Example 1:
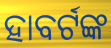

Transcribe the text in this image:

ହାବର୍ଟଙ୍କ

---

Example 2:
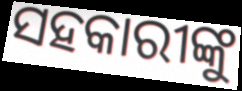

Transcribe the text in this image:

ସହକାରୀଙ୍କୁ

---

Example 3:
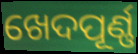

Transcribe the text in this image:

ଖେଦପୂର୍ଣ୍ଣ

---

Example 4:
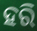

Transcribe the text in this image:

ହରି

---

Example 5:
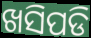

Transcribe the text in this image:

ଖସିପଡି